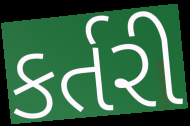
કર્તરી